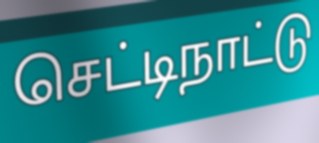
செட்டிநாட்டு